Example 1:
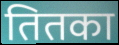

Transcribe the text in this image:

तितका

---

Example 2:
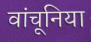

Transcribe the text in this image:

वांचूनिया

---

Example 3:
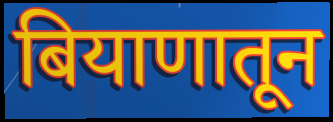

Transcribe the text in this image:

बियाणातून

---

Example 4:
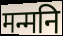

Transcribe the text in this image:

मन्मनि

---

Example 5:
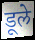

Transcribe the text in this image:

डूले